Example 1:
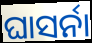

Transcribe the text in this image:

ଘାସର୍ନା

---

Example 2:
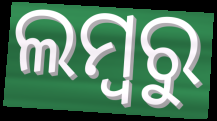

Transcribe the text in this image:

ଲମ୍ବରୁ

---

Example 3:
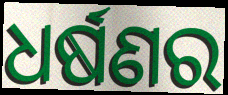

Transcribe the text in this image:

ଧର୍ଷଣର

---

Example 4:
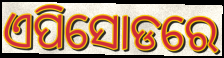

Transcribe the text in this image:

ଏପିସୋଡରେ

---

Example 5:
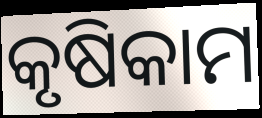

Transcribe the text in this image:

କୃଷିକାମ